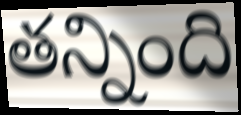
తన్నింది